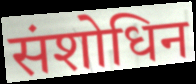
संशोधिन